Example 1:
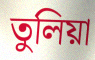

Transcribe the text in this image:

তুলিয়া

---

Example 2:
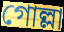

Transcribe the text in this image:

গোল্লা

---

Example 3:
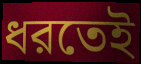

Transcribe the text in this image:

ধরতেই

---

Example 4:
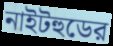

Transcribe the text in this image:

নাইটহুডের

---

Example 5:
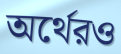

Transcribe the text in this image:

অর্থেরও